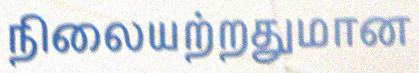
நிலையற்றதுமான